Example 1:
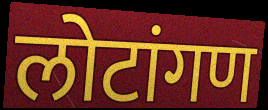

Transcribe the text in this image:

लोटांगण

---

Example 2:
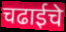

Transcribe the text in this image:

चढाईचे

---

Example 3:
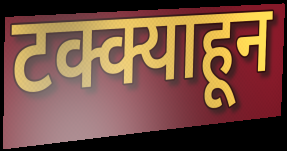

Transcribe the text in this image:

टक्क्याहून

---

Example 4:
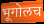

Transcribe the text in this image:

भूगोलच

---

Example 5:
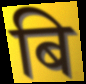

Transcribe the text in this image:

बि